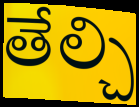
తేల్చి